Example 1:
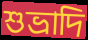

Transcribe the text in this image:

শুভ্রাদি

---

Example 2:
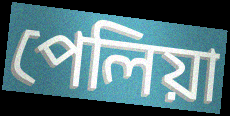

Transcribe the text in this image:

পেলিয়া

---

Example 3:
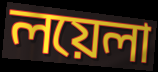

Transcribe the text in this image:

লয়েলা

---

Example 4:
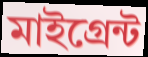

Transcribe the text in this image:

মাইগ্রেন্ট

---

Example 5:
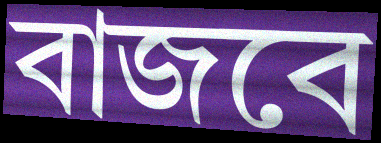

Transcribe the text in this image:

বাজবে